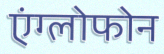
एंग्लोफोन